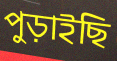
পুড়াইছি